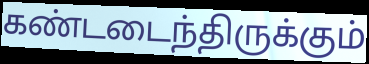
கண்டடைந்திருக்கும்